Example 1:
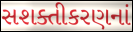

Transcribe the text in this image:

સશક્તીકરણનાં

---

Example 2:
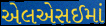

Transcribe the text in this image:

એલએસઈમાં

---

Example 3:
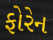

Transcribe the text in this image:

ફોરેન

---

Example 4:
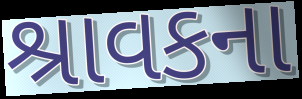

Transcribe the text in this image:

શ્રાવકના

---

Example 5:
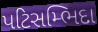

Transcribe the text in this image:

પટિસમ્ભિદા